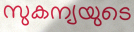
സുകന്യയുടെ